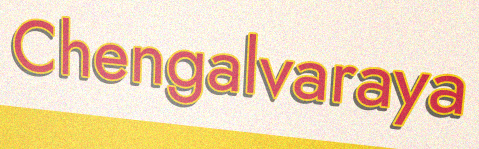
Chengalvaraya